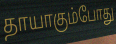
தாயாகும்போது